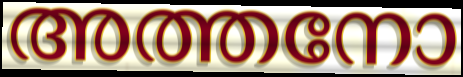
അത്തനോ